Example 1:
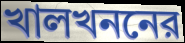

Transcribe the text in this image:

খালখননের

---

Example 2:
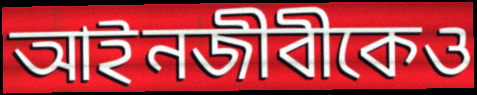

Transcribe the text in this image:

আইনজীবীকেও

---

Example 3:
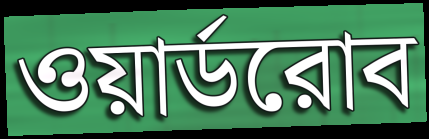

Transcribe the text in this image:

ওয়ার্ডরোব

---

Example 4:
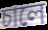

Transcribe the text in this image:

চালে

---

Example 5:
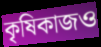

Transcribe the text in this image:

কৃষিকাজও